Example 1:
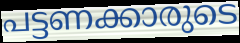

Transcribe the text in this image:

പട്ടണക്കാരുടെ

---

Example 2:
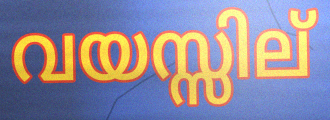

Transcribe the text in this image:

വയസ്സില്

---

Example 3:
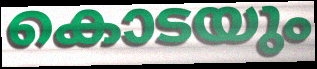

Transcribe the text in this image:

കൊടയും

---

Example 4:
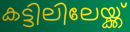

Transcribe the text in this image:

കട്ടിലിലേയ്ക്ക്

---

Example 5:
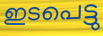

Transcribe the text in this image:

ഇടപെട്ടു